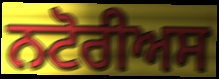
ਨਟੋਰੀਅਸ